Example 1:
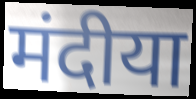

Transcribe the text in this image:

मंदीया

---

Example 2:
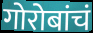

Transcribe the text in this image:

गोरोबांचं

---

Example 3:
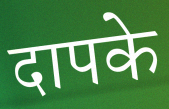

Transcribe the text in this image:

दापके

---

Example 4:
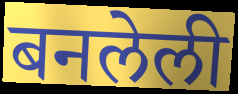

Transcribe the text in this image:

बनलेली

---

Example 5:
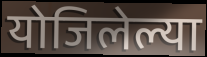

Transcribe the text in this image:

योजिलेल्या